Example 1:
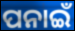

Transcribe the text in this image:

ପନାଇଁ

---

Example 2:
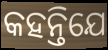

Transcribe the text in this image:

କହନ୍ତିଯେ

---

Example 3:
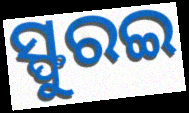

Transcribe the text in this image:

ସ୍ଫୁରଇ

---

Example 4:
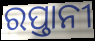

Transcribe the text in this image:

ରପ୍ତାନୀ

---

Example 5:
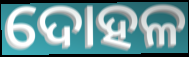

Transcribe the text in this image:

ଦୋହଳ